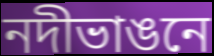
নদীভাঙনে